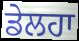
ਡੇਲਹਾ